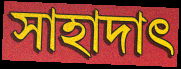
সাহাদাৎ